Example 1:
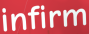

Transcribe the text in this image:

infirm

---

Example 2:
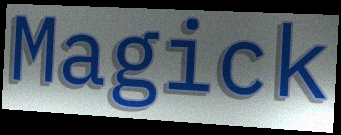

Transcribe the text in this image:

Magick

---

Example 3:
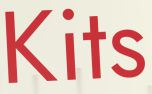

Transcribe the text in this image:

Kits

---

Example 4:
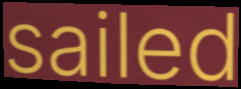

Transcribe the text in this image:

sailed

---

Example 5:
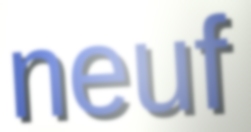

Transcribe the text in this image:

neuf